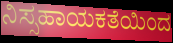
ನಿಸ್ಸಹಾಯಕತೆಯಿಂದ